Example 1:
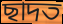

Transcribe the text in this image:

ছাদত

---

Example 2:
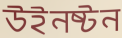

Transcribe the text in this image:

উইনষ্টন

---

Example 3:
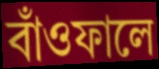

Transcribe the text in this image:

বাঁওফালে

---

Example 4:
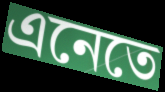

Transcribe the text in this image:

এনেতে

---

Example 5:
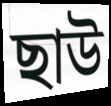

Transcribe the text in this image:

ছাউ